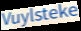
Vuylsteke